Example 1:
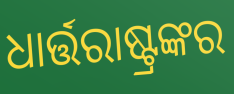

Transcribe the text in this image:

ଧାର୍ତ୍ତରାଷ୍ଟ୍ରଙ୍କର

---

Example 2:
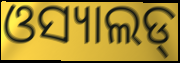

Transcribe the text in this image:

ଓସ୍ୟାଲଡ୍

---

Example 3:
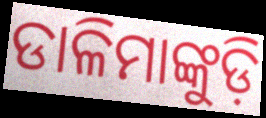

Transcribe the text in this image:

ଡାଳିମାଙ୍କୁଡ଼ି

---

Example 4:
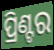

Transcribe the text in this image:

ପ୍ରିଣ୍ଟର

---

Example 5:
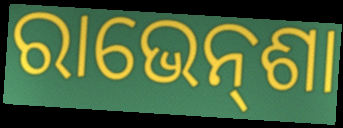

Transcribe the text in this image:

ରାଭେନ୍‌ଶା